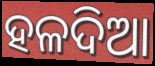
ହଳଦିଆ